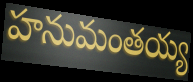
హనుమంతయ్య